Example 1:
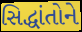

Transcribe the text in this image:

સિદ્ધાંતોને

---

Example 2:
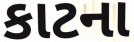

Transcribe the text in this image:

કાટના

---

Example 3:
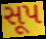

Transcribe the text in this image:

સૂપ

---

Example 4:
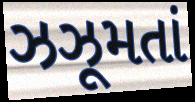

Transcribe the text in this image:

ઝઝૂમતાં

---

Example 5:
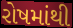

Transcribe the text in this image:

રોષમાંથી